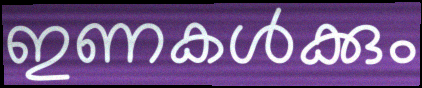
ഇണകൾക്കും